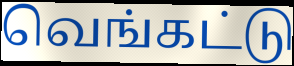
வெங்கட்டு